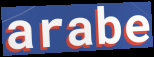
arabe